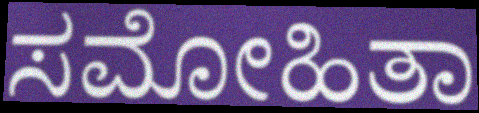
ಸಮೋಹಿತಾ